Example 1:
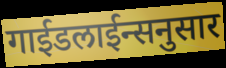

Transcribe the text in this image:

गाईडलाईन्सनुसार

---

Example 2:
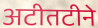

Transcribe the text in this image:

अटीतटीने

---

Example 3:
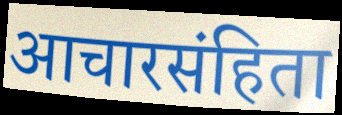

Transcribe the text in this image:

आचारसंहिता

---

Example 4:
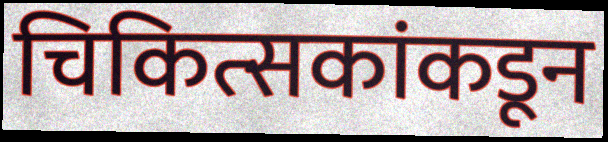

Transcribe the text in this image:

चिकित्सकांकडून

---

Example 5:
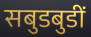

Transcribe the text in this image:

सबुडबुडीं